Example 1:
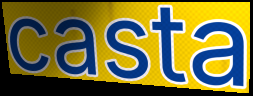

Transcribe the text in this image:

casta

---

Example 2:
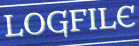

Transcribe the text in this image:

LOGFILE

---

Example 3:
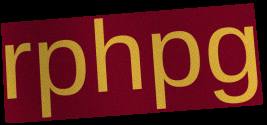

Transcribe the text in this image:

rphpg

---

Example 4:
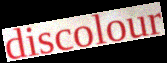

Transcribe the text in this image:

discolour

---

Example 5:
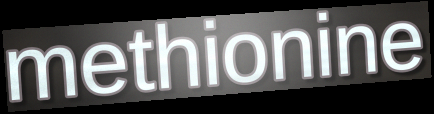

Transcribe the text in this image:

methionine